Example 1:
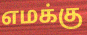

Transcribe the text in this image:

எமக்கு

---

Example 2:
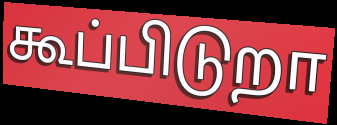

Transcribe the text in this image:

கூப்பிடுறா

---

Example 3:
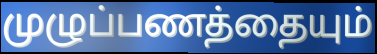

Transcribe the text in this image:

முழுப்பணத்தையும்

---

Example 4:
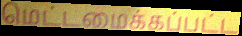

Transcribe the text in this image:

மெட்டமைக்கப்பட்ட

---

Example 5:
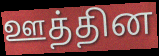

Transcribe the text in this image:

ஊத்தின